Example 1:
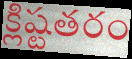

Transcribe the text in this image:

క్లిష్టతరం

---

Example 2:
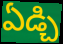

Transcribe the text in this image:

ఏడ్చి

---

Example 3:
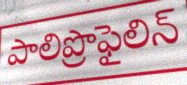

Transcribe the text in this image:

పాలిప్రొఫైలిన్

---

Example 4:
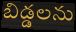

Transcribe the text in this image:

బిడ్డలను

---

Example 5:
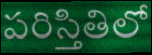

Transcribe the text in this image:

పరిస్తితిలో